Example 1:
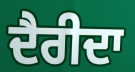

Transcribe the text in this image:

ਦੈਰੀਦਾ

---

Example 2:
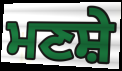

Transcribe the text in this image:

ਮਣਸ਼ੇ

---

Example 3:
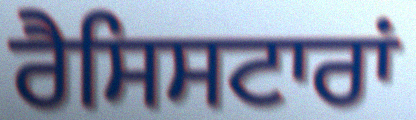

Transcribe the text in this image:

ਰੈਸਿਸਟਾਰਾਂ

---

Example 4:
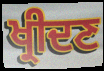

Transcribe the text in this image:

ਖ੍ਰੀਦਣ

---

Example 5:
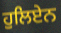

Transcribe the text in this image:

ਹੁਲਿਏਨ